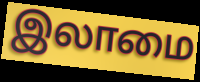
இலாமை